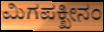
ಮಿಗಪಕ್ಖೀನಂ